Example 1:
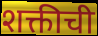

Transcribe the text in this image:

शक्तीची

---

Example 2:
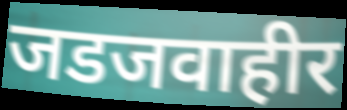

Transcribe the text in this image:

जडजवाहीर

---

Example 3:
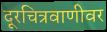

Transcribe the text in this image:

दूरचित्रवाणीवर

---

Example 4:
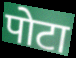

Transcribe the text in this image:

पोटा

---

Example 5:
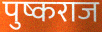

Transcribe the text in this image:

पुष्कराज